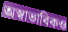
অস্বাভাবিকও